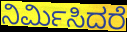
ನಿರ್ಮಿಸಿದರೆ